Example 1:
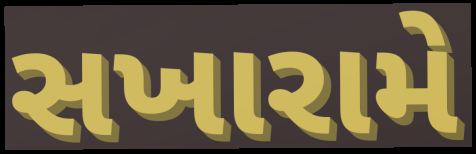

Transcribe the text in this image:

સખારામે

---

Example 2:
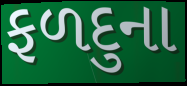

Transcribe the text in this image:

ફળદુના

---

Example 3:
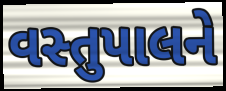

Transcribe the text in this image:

વસ્તુપાલને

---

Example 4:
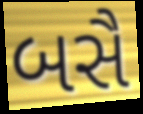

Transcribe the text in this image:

બસૈ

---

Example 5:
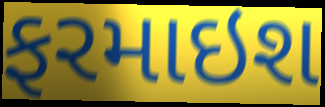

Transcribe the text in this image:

ફરમાઇશ